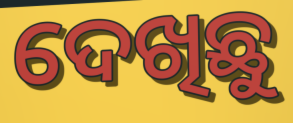
ଦେଖିଛୁ